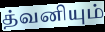
த்வனியும்